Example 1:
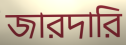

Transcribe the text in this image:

জারদারি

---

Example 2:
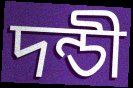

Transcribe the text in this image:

দন্ডী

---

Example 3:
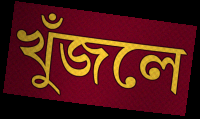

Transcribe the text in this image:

খুঁজলে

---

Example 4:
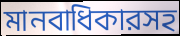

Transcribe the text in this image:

মানবাধিকারসহ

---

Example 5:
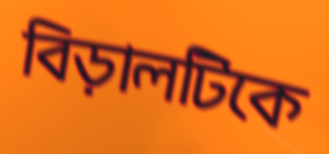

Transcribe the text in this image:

বিড়ালটিকে